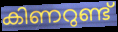
കിണറുണ്ട്